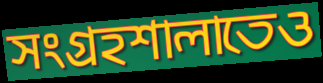
সংগ্রহশালাতেও